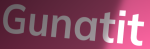
Gunatit